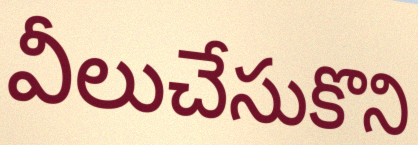
వీలుచేసుకొని